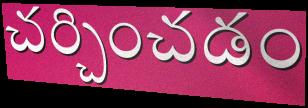
చర్చించడం